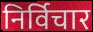
निर्विचार